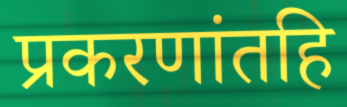
प्रकरणांतहि